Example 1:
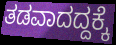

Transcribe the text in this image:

ತಡವಾದದ್ದಕ್ಕೆ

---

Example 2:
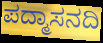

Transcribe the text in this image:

ಪದ್ಮಾಸನದಿ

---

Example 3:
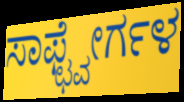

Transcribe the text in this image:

ಸಾಫ್ಟ್ವೇರ್ಗಳ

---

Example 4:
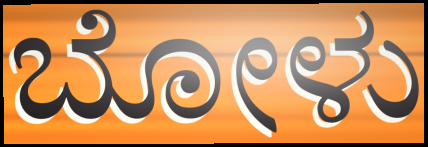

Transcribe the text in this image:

ಬೋಳು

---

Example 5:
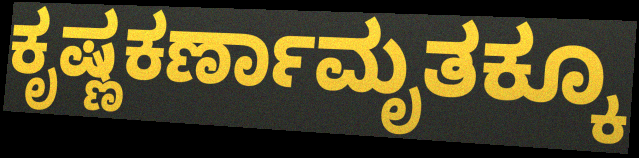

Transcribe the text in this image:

ಕೃಷ್ಣಕರ್ಣಾಮೃತಕ್ಕೂ